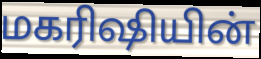
மகரிஷியின்